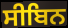
ਸੀਬਿਨ